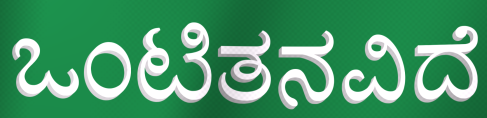
ಒಂಟಿತನವಿದೆ